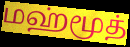
மஹ்மூத்